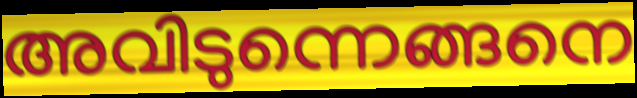
അവിടുന്നെങ്ങനെ